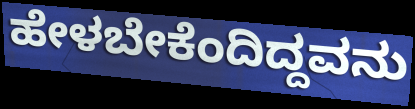
ಹೇಳಬೇಕೆಂದಿದ್ದವನು